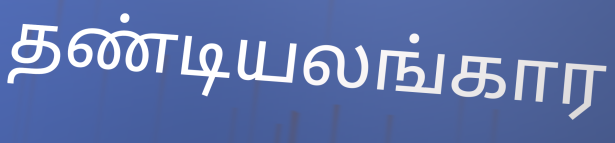
தண்டியலங்கார